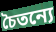
চৈতন্যে